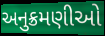
અનુક્રમણીઓ